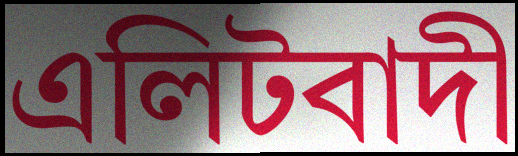
এলিটবাদী